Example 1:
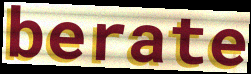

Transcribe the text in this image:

berate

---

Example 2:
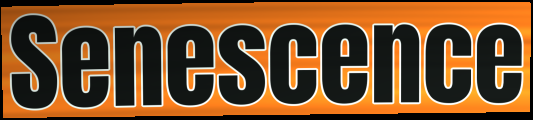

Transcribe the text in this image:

Senescence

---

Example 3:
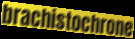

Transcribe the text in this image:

brachistochrone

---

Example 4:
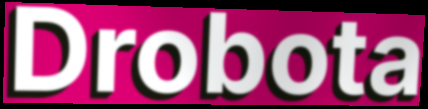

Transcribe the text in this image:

Drobota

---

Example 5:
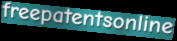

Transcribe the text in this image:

freepatentsonline